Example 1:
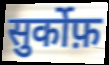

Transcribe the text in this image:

सुर्कोफ़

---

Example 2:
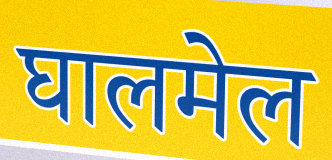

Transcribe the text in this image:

घालमेल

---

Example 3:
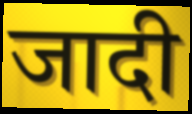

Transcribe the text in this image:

जादी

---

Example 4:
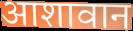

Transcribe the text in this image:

आशावान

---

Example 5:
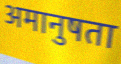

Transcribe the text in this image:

अमानुषता